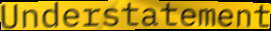
Understatement